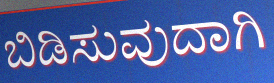
ಬಿಡಿಸುವುದಾಗಿ